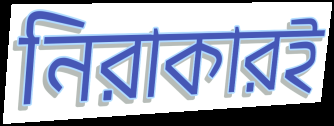
নিরাকারই